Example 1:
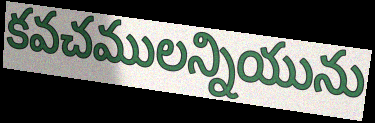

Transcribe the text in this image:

కవచములన్నియును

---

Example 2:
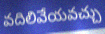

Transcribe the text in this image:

వదిలివేయవచ్చు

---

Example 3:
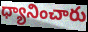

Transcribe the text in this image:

ధ్యానించారు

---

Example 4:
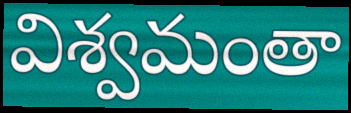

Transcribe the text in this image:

విశ్వమంతా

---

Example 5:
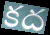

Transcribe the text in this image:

కద